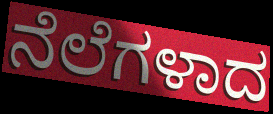
ನೆಲೆಗಳಾದ